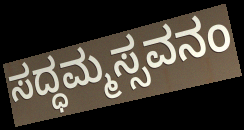
ಸದ್ಧಮ್ಮಸ್ಸವನಂ